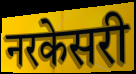
नरकेसरी